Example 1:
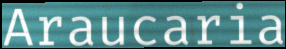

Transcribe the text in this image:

Araucaria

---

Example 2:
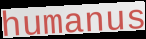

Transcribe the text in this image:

humanus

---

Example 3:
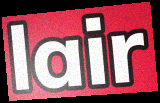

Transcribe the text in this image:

lair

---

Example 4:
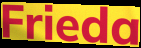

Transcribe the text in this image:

Frieda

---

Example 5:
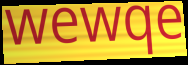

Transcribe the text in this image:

wewqe